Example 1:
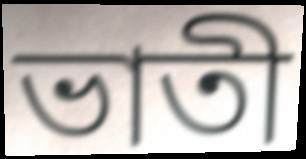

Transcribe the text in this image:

ভাতী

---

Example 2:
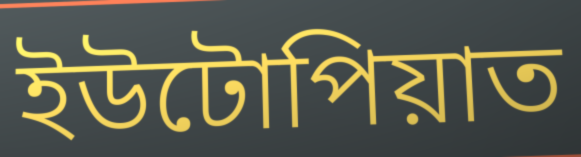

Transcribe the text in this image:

ইউটোপিয়াত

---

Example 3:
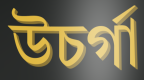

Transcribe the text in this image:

উচৰ্গা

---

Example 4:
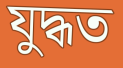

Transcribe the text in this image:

যুদ্ধত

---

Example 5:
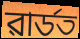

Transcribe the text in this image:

ৱাৰ্ডত